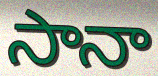
సానా